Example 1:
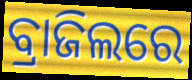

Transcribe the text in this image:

ବ୍ରାଜିଲରେ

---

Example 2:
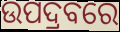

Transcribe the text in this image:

ଉପଦ୍ରବରେ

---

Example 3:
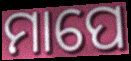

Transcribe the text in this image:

ମାପେ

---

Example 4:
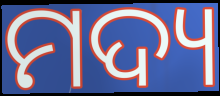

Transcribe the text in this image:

ମଦ୍ୟ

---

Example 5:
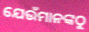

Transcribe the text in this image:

ଯେଉଁମାନଙ୍କଠୁ